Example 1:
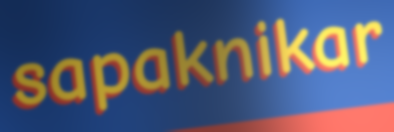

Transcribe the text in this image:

sapaknikar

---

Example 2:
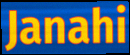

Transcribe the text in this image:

Janahi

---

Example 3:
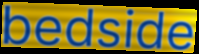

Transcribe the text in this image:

bedside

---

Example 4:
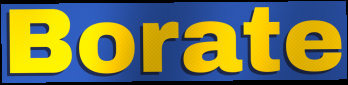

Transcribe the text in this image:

Borate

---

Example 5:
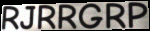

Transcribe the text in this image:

RJRRGRP